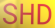
SHD